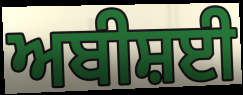
ਅਬੀਸ਼ਈ